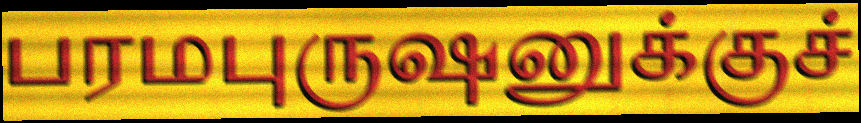
பரமபுருஷனுக்குச்